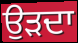
ਉੜਦਾ